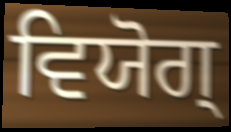
ਵਿਯੋਗ੍